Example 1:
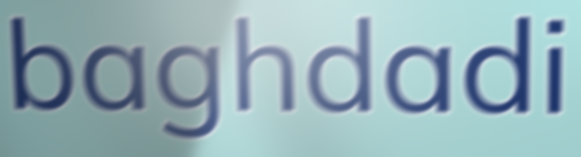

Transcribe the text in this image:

baghdadi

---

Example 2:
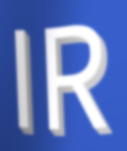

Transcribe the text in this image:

IR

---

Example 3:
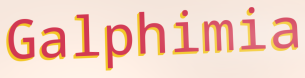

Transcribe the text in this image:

Galphimia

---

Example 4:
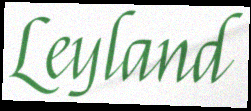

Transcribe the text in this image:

Leyland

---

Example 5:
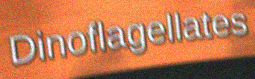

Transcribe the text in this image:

Dinoflagellates